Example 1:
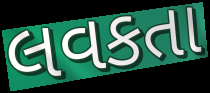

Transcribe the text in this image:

લવકતા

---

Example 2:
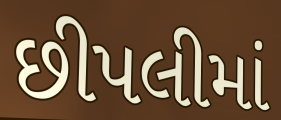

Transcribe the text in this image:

છીપલીમાં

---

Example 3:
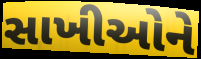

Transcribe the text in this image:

સાખીઓને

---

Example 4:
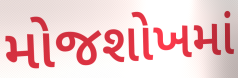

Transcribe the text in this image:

મોજશોખમાં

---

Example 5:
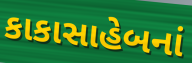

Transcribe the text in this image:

કાકાસાહેબનાં